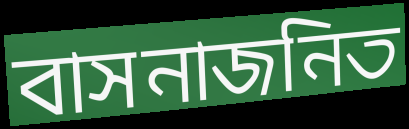
বাসনাজনিত